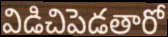
విడిచిపెడతారో